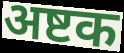
अष्टक